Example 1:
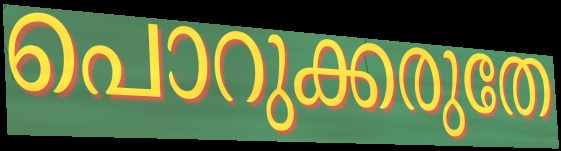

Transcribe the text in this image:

പൊറുക്കരുതേ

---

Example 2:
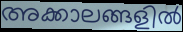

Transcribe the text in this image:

അക്കാലങ്ങളിൽ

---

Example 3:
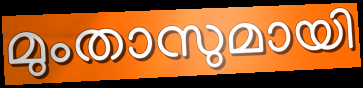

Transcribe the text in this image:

മുംതാസുമായി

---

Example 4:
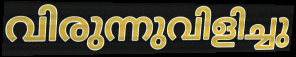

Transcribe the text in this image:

വിരുന്നുവിളിച്ചു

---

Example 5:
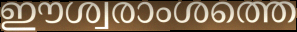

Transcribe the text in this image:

ഈശ്വരാംശത്തെ